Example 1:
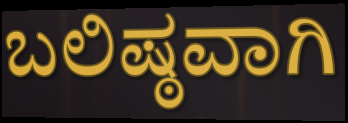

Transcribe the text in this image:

ಬಲಿಷ್ಠವಾಗಿ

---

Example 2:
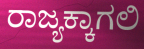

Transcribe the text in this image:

ರಾಜ್ಯಕ್ಕಾಗಲಿ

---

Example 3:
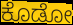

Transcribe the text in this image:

ಕೊಡೋ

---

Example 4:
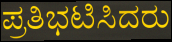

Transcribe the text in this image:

ಪ್ರತಿಭಟಿಸಿದರು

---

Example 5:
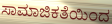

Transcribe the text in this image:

ಸಾಮಾಜಿಕತೆಯಿಂದ